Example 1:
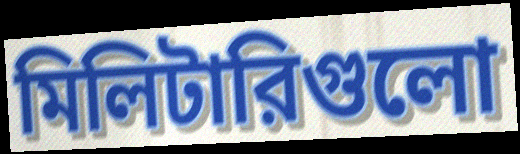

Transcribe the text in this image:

মিলিটারিগুলো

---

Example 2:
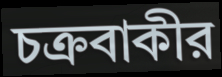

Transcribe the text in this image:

চক্রবাকীর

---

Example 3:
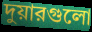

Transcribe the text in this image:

দুয়ারগুলো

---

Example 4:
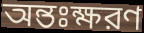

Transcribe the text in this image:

অন্তঃক্ষরণ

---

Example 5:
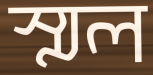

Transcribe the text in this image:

স্মল